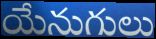
యేనుగులు